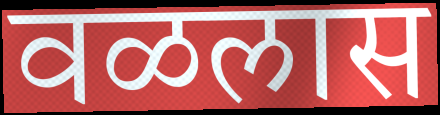
वळलास